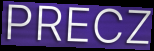
PRECZ